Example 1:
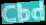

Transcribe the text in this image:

Cbd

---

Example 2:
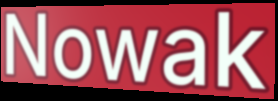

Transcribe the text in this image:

Nowak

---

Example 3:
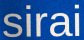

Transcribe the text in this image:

sirai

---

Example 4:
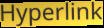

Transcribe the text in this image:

Hyperlink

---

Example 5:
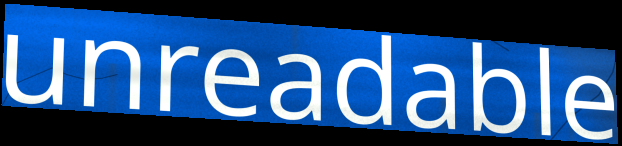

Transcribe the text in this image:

unreadable